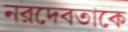
নরদেবতাকে